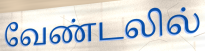
வேண்டலில்